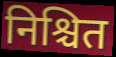
निश्चित